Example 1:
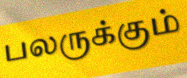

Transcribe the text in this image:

பலருக்கும்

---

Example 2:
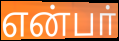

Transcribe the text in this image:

என்பர்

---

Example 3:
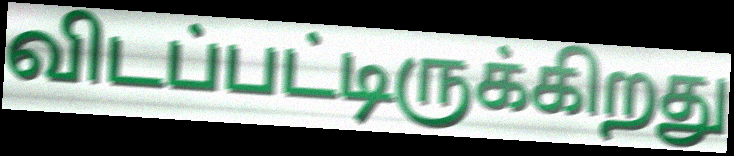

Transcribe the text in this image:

விடப்பட்டிருக்கிறது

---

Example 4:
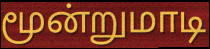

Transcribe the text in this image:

மூன்றுமாடி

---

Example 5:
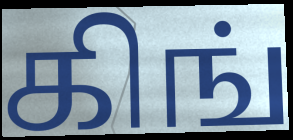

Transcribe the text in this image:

கிங்